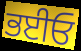
ਭਈਓ